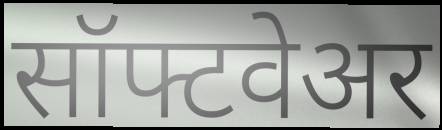
सॉफ्टवेअर